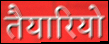
तैयारियो